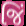
જિં